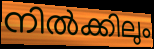
നിൽക്കിലും